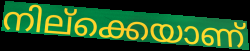
നില്ക്കെയാണ്